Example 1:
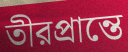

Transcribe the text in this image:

তীরপ্রান্তে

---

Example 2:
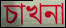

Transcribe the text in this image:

চাখনা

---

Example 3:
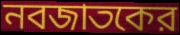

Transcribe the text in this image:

নবজাতকের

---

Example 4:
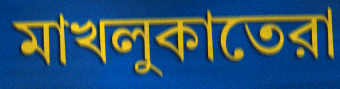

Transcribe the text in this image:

মাখলুকাতেরা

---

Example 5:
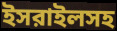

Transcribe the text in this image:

ইসরাইলসহ